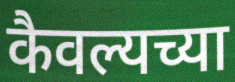
कैवल्यच्या